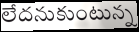
లేదనుకుంటున్న